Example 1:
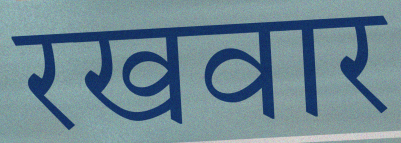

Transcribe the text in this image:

रखवार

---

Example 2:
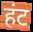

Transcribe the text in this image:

हंट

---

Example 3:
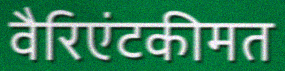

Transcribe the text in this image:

वैरिएंटकीमत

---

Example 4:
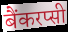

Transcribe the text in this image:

बैंकरप्सी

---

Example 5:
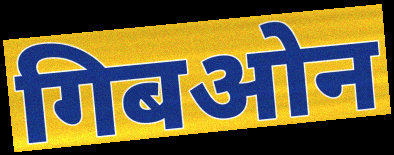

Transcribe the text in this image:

गिबओन